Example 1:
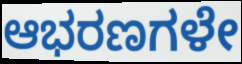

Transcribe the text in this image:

ಆಭರಣಗಳೇ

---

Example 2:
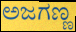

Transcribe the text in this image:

ಅಜಗಣ್ಣ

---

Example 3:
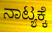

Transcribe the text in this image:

ನಾಟ್ಯಕ್ಕೆ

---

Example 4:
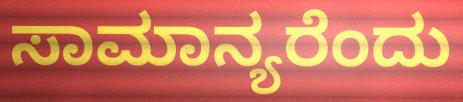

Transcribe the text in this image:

ಸಾಮಾನ್ಯರೆಂದು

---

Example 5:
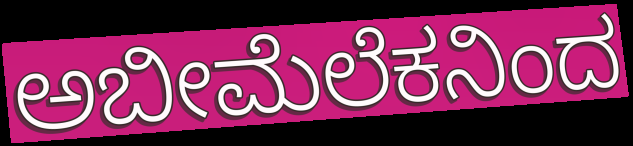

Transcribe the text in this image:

ಅಬೀಮೆಲೆಕನಿಂದ